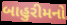
બાહુરીમનો